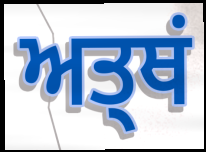
ਅਤ੍ਥਂ